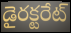
డైరక్టరేట్